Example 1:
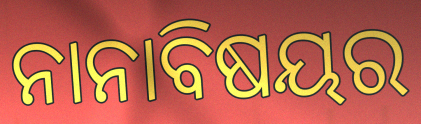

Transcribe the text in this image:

ନାନାବିଷୟର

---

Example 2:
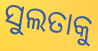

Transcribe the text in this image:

ସୁଲତାକୁ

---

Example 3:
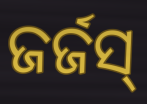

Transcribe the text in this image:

ଜର୍ଜସ୍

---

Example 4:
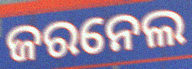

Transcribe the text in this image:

ଜରନେଲ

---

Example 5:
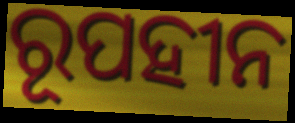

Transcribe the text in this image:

ରୂପହୀନ